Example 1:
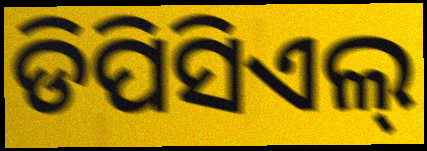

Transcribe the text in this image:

ଡିପିସିଏଲ୍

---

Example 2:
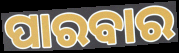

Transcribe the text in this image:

ପାରବାର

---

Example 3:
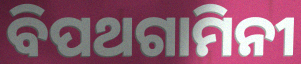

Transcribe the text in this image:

ବିପଥଗାମିନୀ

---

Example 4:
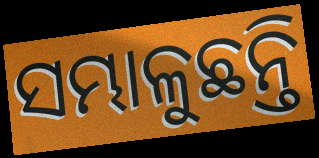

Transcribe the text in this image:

ସମ୍ଭାଳୁଛନ୍ତି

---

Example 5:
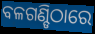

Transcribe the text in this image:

ବଳଗଣ୍ଡିଠାରେ